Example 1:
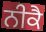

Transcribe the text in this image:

ਨੀਕੈ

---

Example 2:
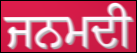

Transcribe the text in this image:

ਜਨਮਦੀ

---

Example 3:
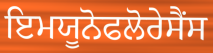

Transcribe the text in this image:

ਇਮਯੂਨੋਫਲੋਰੇਸੈਂਸ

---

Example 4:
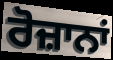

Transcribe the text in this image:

ਰੋਜ਼ਾਨਾਂ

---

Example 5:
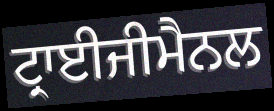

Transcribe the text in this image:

ਟ੍ਰਾਈਜੀਮੈਨਲ